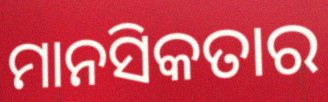
ମାନସିକତାର